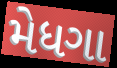
મેધગા